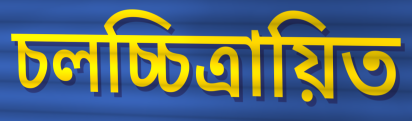
চলচ্চিত্রায়িত